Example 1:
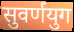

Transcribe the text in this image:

सुवर्णयुग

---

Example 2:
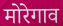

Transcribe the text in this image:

मोरेगाव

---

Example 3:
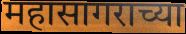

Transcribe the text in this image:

महासागराच्या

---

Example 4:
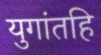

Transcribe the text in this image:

युगांतहि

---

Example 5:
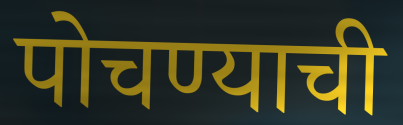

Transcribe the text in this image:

पोचण्याची